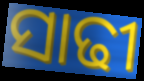
ସାଢୀ